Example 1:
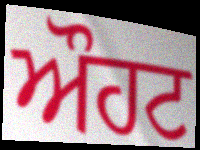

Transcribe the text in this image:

ਔਹਟ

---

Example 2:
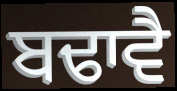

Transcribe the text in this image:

ਬਢਾਵੈ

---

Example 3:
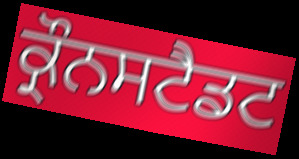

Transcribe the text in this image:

ਕ੍ਰੌਨਸਟੈਡਟ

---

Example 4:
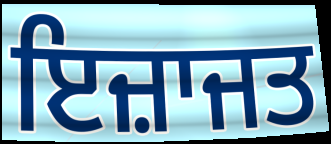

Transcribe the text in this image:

ਇਜ਼ਾਜਤ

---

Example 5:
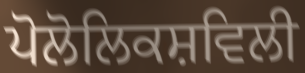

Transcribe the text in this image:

ਪੋਲੋਲਿਕਸ਼ਵਿਲੀ